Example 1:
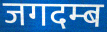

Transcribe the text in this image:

जगदम्ब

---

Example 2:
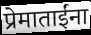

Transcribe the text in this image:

प्रेमाताईंना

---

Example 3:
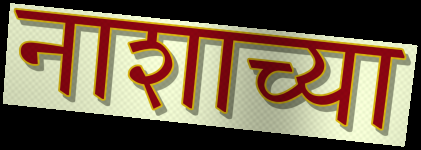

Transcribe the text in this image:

नाशाच्या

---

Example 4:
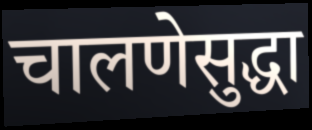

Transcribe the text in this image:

चालणेसुद्धा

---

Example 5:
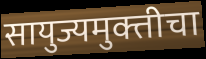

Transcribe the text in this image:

सायुज्यमुक्तीचा